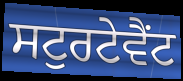
ਸਟੁਰਟੇਵੈਂਟ